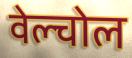
वेल्चोल